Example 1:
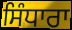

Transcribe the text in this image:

ਸਿੰਧਾਰਾ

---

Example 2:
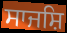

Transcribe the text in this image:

ਸਾਜਸ਼ਿ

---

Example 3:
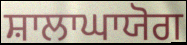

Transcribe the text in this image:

ਸ਼ਾਲਾਘਾਯੋਗ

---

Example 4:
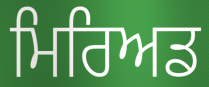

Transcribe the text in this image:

ਮਿਰਿਅਡ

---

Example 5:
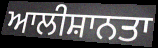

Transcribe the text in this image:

ਆਲੀਸ਼ਾਨਤਾ